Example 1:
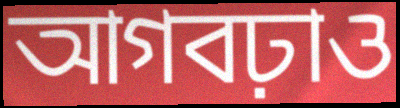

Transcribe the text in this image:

আগবঢ়াও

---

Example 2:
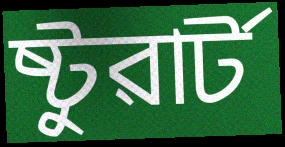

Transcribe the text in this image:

ষ্টুৱাৰ্ট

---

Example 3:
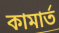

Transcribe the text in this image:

কামাৰ্ত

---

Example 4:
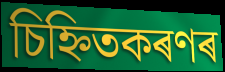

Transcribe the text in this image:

চিহ্নিতকৰণৰ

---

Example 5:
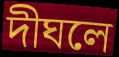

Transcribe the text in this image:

দীঘলে